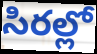
సిరల్లో